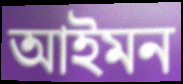
আইমন